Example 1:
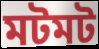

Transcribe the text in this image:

মটমট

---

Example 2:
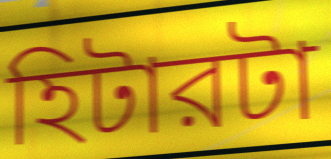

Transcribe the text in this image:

হিটারটা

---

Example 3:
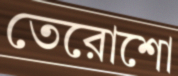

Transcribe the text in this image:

তেরোশো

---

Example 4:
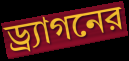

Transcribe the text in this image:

ড্র্যাগনের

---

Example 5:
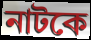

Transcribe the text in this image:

নাটকে